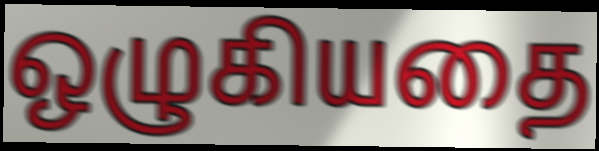
ஒழுகியதை